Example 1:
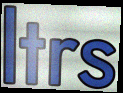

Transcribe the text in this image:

ltrs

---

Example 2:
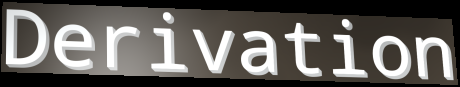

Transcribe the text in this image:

Derivation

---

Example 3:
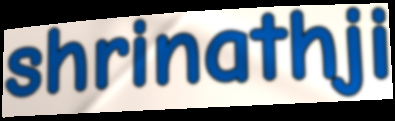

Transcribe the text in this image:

shrinathji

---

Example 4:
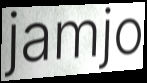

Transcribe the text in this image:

jamjo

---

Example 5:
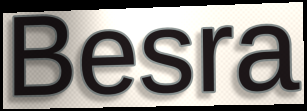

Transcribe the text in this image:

Besra